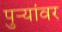
पुऱ्यांवर